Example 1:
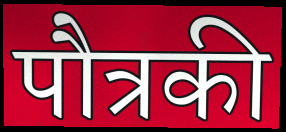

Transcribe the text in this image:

पौत्रकी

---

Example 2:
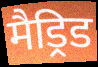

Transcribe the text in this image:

मैड्रिड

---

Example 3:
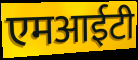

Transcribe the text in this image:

एमआईटी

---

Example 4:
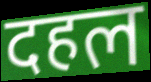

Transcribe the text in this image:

दहल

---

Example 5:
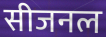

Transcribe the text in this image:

सीजनल